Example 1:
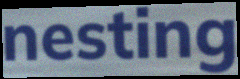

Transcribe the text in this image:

nesting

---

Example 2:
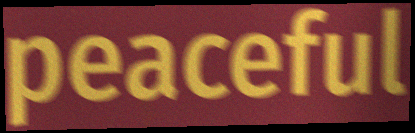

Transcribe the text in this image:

peaceful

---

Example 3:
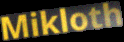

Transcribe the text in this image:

Mikloth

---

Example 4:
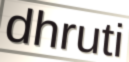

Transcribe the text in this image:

dhruti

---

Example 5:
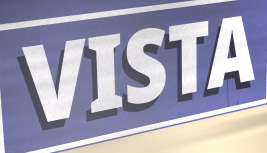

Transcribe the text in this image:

VISTA